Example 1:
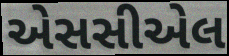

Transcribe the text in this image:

એસસીએલ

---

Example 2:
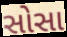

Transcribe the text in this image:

સોસા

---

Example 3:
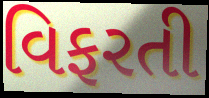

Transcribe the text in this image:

વિફરતી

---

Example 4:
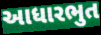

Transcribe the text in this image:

આધારભુત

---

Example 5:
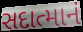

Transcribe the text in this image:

સદાત્માનં